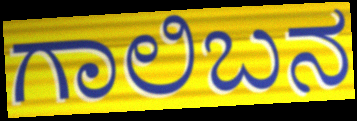
ಗಾಲಿಬನ